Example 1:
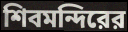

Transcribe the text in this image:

শিবমন্দিরের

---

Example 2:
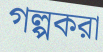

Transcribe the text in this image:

গল্পকরা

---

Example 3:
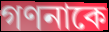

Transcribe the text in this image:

গণনাকে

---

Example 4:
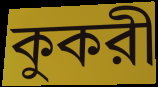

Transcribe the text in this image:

কুকরী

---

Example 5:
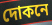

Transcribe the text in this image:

দোকনে